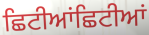
ਛਿਟੀਆਂਛਿਟੀਆਂ